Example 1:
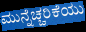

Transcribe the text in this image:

ಮುನ್ನೆಚ್ಚರಿಕೆಯು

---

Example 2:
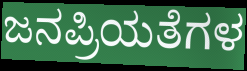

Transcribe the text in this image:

ಜನಪ್ರಿಯತೆಗಳ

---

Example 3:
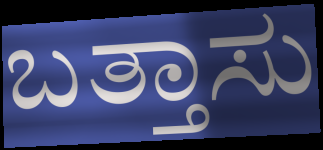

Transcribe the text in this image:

ಬತ್ತಾಸು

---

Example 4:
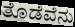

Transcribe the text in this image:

ತೊಡೆವೆನು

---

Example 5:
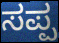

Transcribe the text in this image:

ಸಪ್ಪ